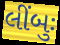
લીંબુઃ